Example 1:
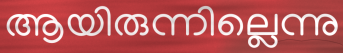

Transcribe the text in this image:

ആയിരുന്നില്ലെന്നു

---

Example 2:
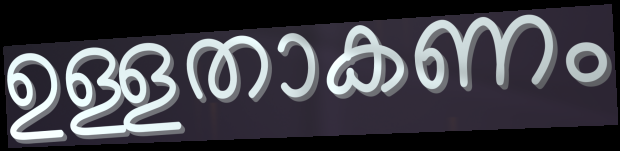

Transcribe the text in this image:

ഉള്ളതാകണം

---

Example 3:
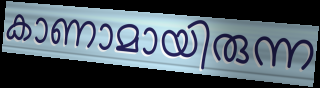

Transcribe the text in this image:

കാണാമായിരുന്ന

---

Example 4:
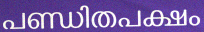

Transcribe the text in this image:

പണ്ഡിതപക്ഷം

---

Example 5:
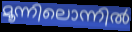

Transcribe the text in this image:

മൂന്നിലൊന്നിൽ